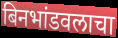
बिनभांडवलाचा